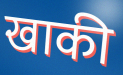
खाकी